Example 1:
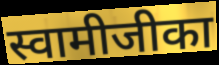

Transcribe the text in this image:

स्वामीजीका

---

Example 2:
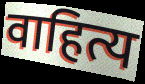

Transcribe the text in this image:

वाहित्य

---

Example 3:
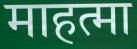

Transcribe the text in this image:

माहत्मा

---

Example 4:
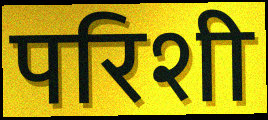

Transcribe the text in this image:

परिशी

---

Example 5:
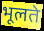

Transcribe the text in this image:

भूलते